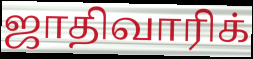
ஜாதிவாரிக்